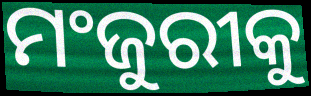
ମଂଜୁରୀକୁ